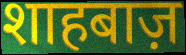
शाहबाज़